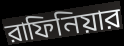
রাফিনিয়ার